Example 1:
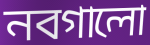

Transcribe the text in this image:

নবগালো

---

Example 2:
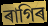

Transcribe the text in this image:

ৰাগিৰ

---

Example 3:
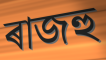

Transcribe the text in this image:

ৰাজহু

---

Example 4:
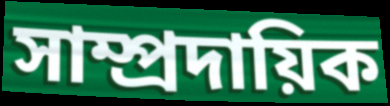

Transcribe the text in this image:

সাম্প্ৰদায়িক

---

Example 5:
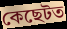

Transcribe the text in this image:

কেছেটত